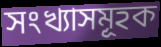
সংখ্যাসমূহক